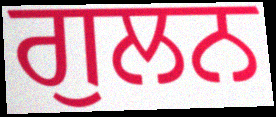
ਗੁਲਨ